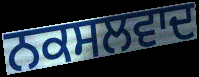
ਨਕਸਲਵਾਦ